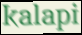
kalapi